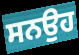
ਸਨਉਹ